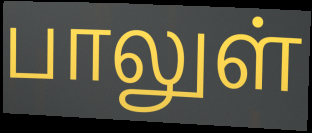
பாலுள்